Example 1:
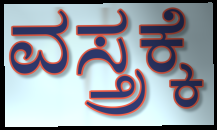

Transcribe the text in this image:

ವಸ್ತ್ರಕ್ಕೆ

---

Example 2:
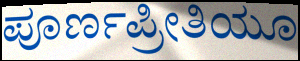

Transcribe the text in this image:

ಪೂರ್ಣಪ್ರೀತಿಯೂ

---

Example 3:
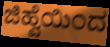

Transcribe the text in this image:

ಜಿಹ್ವೆಯಿಂದ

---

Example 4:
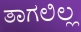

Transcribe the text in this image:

ತಾಗಲಿಲ್ಲ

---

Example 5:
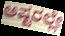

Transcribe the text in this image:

ಅಷ್ಟರಲ್ಲೇ